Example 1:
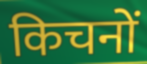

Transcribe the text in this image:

किचनों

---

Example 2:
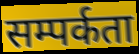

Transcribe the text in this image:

सम्पर्कता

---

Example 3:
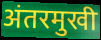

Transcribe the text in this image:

अंतरमुखी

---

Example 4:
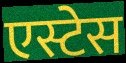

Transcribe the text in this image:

एस्टेस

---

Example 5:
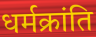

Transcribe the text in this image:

धर्मक्रांति